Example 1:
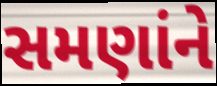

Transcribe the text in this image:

સમણાંને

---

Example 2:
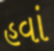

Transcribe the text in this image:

હવાં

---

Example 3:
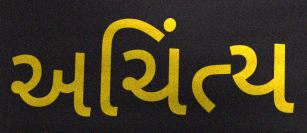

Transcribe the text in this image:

અચિંત્ય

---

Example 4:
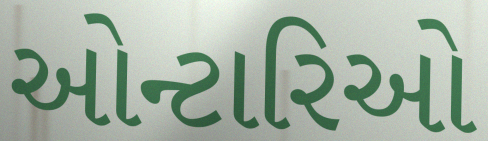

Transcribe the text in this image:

ઓન્ટારિઓ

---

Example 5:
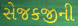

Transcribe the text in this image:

સેજકજીની